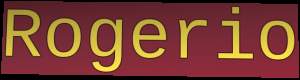
Rogerio